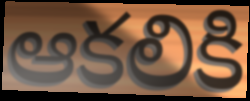
ఆకలికి